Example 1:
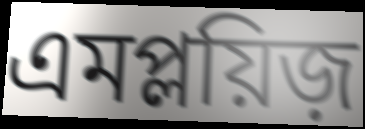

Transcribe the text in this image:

এমপ্লয়িজ়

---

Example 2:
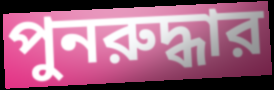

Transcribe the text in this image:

পুনরুদ্ধার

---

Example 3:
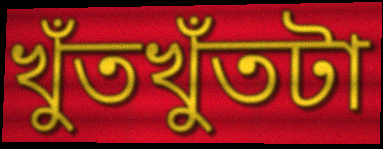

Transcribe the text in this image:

খুঁতখুঁতটা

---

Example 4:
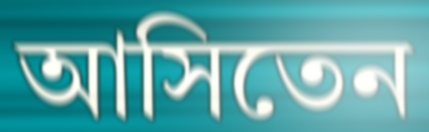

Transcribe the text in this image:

আসিতেন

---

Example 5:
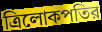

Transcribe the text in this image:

ত্রিলোকপতির